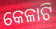
କେଳାଟି